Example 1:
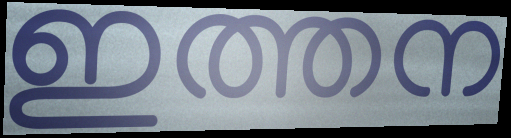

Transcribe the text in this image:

ഇത്തന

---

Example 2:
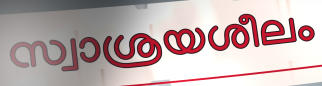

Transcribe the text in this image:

സ്വാശ്രയശീലം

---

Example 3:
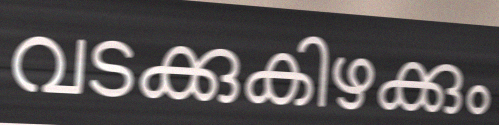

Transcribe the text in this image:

വടക്കുകിഴക്കും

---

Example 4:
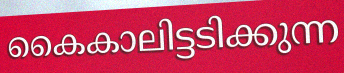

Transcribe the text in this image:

കൈകാലിട്ടടിക്കുന്ന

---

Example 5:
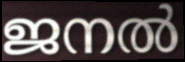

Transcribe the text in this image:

ജനൽ